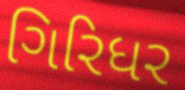
ગિરિધર